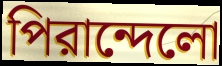
পিরান্দেলো